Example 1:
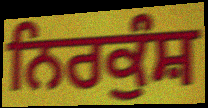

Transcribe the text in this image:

ਨਿਰਕੁੰਸ਼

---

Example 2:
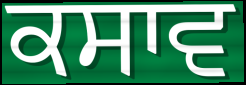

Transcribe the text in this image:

ਕਸਾਵ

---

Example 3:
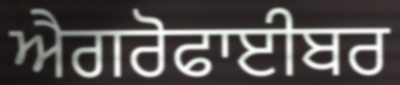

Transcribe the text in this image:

ਐਗਰੋਫਾਈਬਰ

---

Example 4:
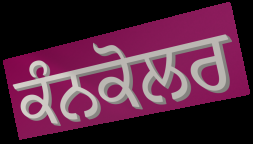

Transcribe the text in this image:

ਕੰਨਕੋਲਰ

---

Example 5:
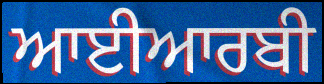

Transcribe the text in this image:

ਆਈਆਰਬੀ